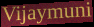
Vijaymuni